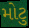
મોટુ